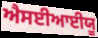
ਐਸਈਆਈਯੂ